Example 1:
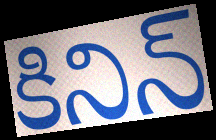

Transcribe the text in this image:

కినిన్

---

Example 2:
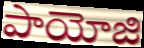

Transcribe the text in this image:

పాయోజి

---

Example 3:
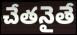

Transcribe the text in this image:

చేతనైతే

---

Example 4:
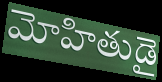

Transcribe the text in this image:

మోహితుడై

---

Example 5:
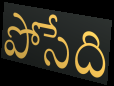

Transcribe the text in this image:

పోసేది